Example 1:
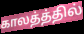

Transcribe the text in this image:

காலத்த்தில்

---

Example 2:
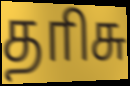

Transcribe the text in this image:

தரிசு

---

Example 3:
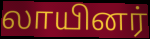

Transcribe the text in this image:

லாயினர்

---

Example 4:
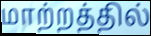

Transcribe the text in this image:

மாற்றத்தில்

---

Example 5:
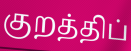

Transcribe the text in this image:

குறத்திப்